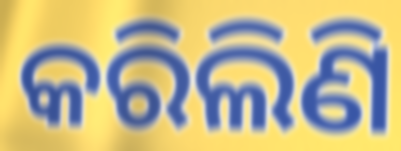
କରିଲିଣି